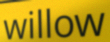
willow